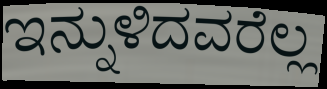
ಇನ್ನುಳಿದವರೆಲ್ಲ